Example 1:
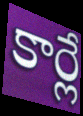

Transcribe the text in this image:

కార్లే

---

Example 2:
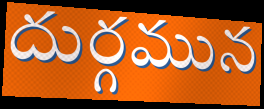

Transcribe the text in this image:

దుర్గమున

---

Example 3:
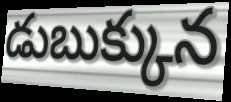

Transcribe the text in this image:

డుబుక్కున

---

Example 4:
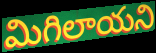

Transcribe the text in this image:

మిగిలాయని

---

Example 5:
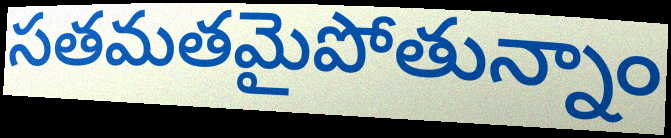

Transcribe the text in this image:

సతమతమైపోతున్నాం